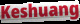
Keshuang